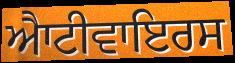
ਐਾਟੀਵਾਇਰਸ